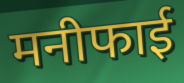
मनीफाई